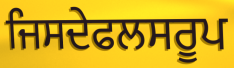
ਜਿਸਦੇਫਲਸਰੂਪ